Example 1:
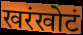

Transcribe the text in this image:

खरंखोटं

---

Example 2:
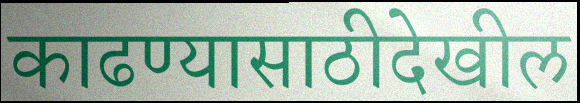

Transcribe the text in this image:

काढण्यासाठीदेखील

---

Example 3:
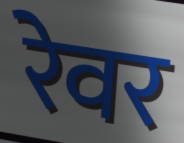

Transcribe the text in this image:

रेवर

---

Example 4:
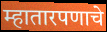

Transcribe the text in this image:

म्हातारपणाचे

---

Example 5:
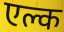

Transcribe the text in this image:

एल्क